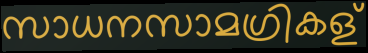
സാധനസാമഗ്രികള്